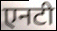
एनटी